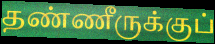
தண்ணீருக்குப்